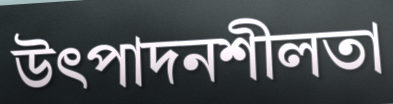
উৎপাদনশীলতা